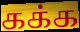
கக்க